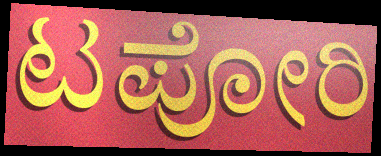
ಟಪೋರಿ